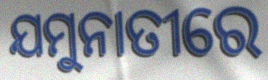
ଯମୁନାତୀରେ